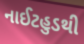
નાઈટહુડથી